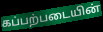
கப்பற்படையின்